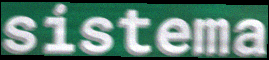
sistema